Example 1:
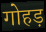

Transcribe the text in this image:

गोहड़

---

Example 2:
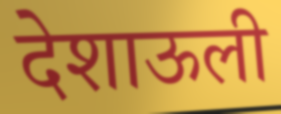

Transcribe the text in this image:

देशाऊली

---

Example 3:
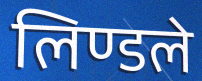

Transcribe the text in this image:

लिण्डले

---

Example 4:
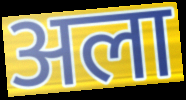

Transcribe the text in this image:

अला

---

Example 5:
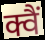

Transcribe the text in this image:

क्वैं